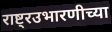
राष्ट्रउभारणीच्या